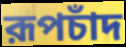
রূপচাঁদ